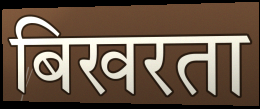
बिखरता